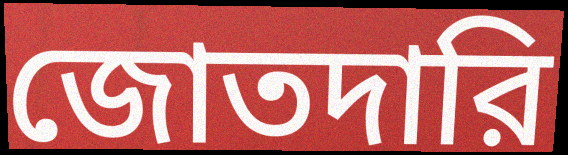
জোতদারি